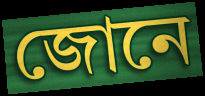
জোনে